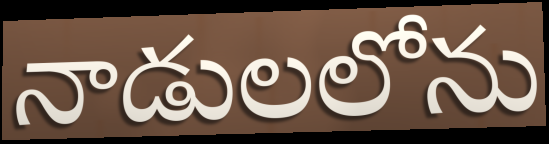
నాడులలోను